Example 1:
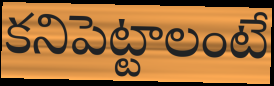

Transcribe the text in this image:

కనిపెట్టాలంటే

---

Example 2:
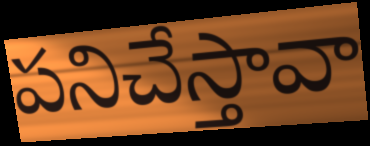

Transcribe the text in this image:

పనిచేస్తావా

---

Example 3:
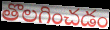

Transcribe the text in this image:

తొలగించడం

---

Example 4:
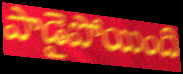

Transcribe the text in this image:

పాడైపోయింది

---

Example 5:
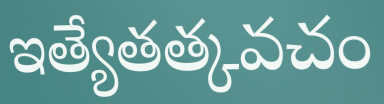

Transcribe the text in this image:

ఇత్యేతత్కవచం